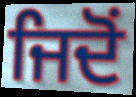
ਜਿਦੋਂ